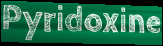
Pyridoxine